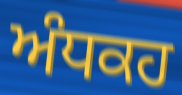
ਅੰਧਕਹ